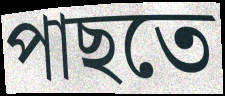
পাছতে